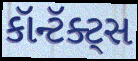
કૉન્ટૅક્ટ્સ